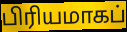
பிரியமாகப்